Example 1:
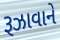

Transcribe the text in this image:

રૂઝાવાને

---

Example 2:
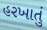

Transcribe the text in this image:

હરખાતું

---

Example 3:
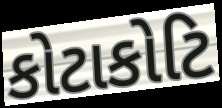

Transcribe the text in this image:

કોટાકોટિ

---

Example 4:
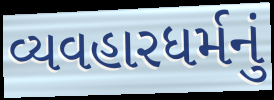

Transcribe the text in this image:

વ્યવહારધર્મનું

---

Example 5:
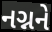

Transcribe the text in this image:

નગ્નને